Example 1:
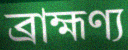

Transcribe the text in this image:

ব্ৰাহ্মণ্য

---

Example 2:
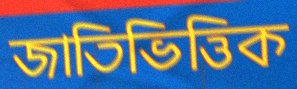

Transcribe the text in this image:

জাতিভিত্তিক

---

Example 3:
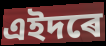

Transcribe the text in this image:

এইদৰে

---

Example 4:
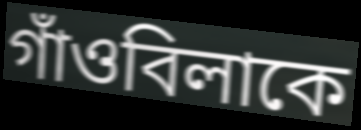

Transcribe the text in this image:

গাঁওবিলাকে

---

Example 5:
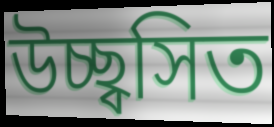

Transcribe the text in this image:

উচ্ছ্বসিত